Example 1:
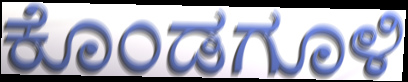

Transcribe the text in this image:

ಕೊಂಡಗೂಳಿ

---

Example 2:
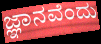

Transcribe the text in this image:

ಜ್ಞಾನವೆಂದು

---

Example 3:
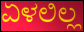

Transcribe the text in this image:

ಏಳಲಿಲ್ಲ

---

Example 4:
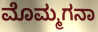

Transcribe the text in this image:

ಮೊಮ್ಮಗನಾ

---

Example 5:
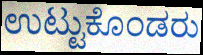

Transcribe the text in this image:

ಉಟ್ಟುಕೊಂಡರು